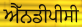
ਐੱਨਡੀਪੀਸੀ